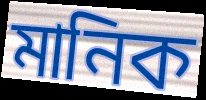
মানিক